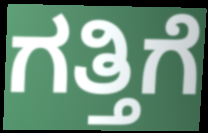
ಗತ್ತಿಗೆ